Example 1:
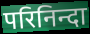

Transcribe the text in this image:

परिनिन्दा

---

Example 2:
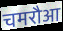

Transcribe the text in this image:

चमरौआ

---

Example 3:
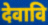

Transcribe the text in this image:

देवावि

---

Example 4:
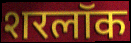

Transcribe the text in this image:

शरलॉक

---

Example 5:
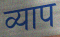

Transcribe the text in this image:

व्याप